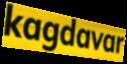
kagdavar